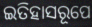
ଇତିହାସରୂପେ